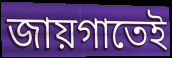
জায়গাতেই